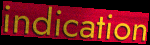
indication